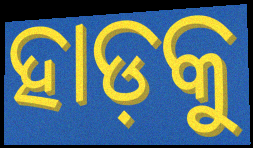
ହାଡ଼କୁ